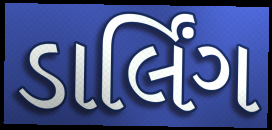
ડાર્લિંગ